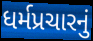
ધર્મપ્રચારનું